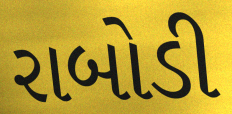
રાબોડી